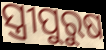
ସ୍ତ୍ରୀପୁରୁଷ